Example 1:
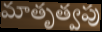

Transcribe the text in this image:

మాతృత్వపు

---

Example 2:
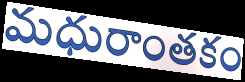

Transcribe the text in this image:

మధురాంతకం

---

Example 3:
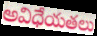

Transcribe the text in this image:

అవిధేయతలు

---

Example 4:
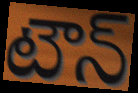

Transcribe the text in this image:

టౌన్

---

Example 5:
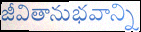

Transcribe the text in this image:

జీవితానుభవాన్ని